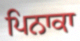
ਪਿਨਾਕਾ